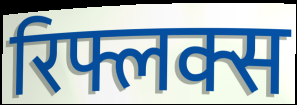
रिफ्लक्स